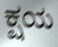
ಕ್ಷಯ